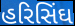
હરિસિંઘ